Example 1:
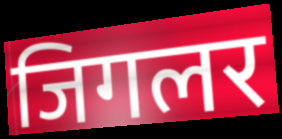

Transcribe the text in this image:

जिगलर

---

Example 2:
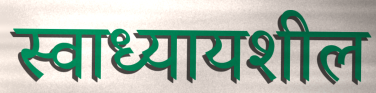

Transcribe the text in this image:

स्वाध्यायशील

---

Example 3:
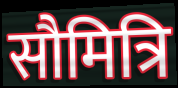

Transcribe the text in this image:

सौमित्रि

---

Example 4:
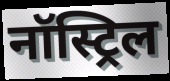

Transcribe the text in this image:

नॉस्ट्रिल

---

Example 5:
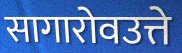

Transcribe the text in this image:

सागारोवउत्ते